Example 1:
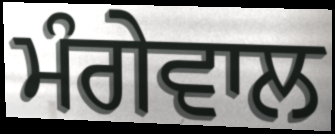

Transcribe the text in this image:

ਮੰਗੇਵਾਲ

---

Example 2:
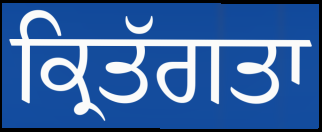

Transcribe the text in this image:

ਕ੍ਰਿਤੱਗਤਾ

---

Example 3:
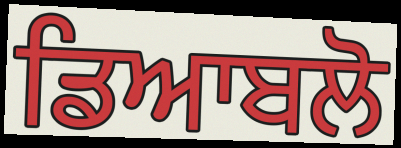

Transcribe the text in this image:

ਡਿਆਬਲੋ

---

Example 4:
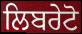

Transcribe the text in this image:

ਲਿਬਰੇਟੋ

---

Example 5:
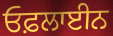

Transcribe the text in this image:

ਓਫ਼ਲਾਈਨ